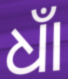
ଧାଁ